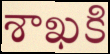
శాఖకి